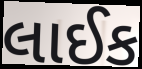
લાઈક